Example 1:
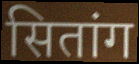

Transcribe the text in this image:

सितांग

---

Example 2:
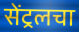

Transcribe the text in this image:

सेंट्रलचा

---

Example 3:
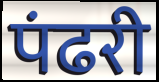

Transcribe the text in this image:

पंढरी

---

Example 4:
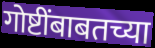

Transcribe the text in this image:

गोष्टींबाबतच्या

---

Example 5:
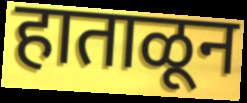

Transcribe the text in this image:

हाताळून